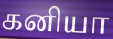
கனியா